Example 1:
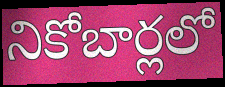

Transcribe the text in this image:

నికోబార్లలో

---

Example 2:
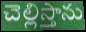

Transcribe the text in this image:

చెల్లిస్తాను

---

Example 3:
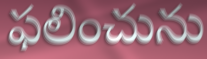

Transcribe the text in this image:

ఫలించును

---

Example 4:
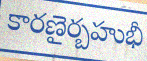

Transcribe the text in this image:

కారణైర్బహుభీ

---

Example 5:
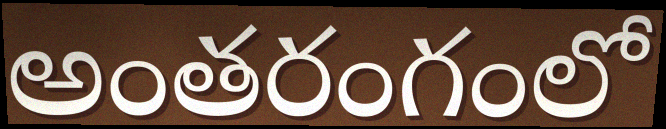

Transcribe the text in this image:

అంతరంగంలో